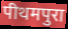
पीथमपुरा